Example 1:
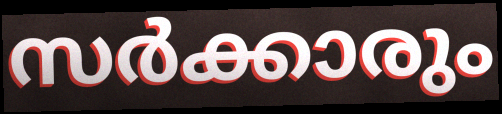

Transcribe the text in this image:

സർക്കാരും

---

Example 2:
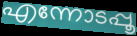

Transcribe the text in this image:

എന്നോടപ്പൂ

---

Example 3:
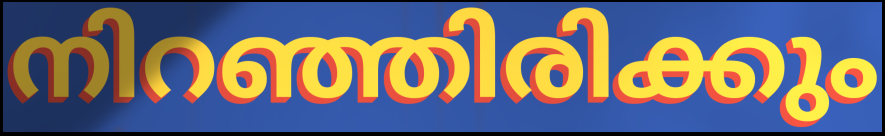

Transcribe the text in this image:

നിറഞ്ഞിരിക്കും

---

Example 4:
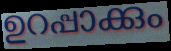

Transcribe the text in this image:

ഉറപ്പാക്കും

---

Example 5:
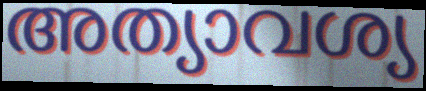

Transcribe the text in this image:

അത്യാവശ്യ